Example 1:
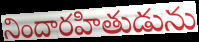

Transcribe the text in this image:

నిందారహితుడును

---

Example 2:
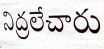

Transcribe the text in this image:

నిద్రలేచారు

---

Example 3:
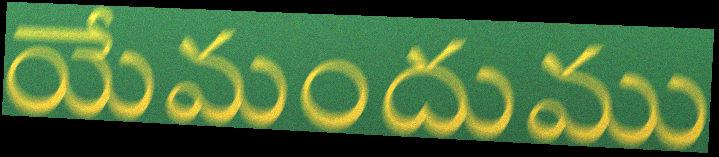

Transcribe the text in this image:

యేమందుము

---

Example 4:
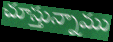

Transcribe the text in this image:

చూస్తున్నాము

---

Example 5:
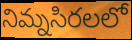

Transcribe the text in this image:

నిమ్నసిరలలో